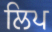
ਲਿਪ